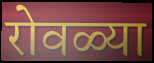
रोवळ्या